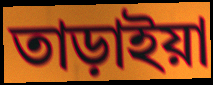
তাড়াইয়া